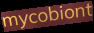
mycobiont